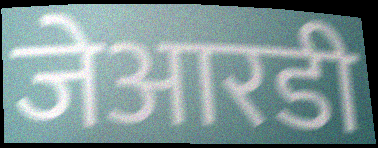
जेआरडी